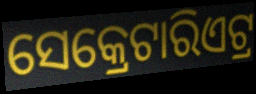
ସେକ୍ରେଟାରିଏଟ୍ର